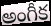
అంగీక